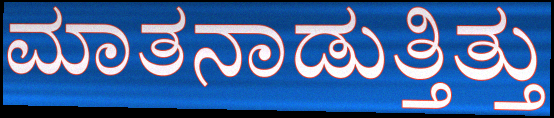
ಮಾತನಾಡುತ್ತಿತ್ತು